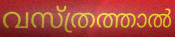
വസ്ത്രത്താൽ